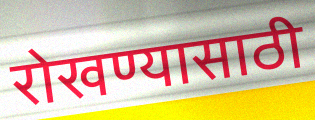
रोखण्यासाठी